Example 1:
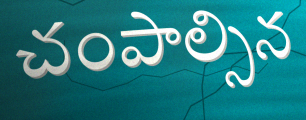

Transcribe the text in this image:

చంపాల్సిన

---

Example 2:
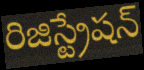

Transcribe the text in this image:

రిజిస్ట్రేషన్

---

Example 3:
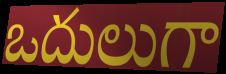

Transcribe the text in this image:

ఒదులుగా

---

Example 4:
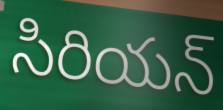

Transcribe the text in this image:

సిరియన్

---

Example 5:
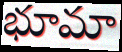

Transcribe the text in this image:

భూమా